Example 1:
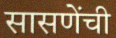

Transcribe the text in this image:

सासणेंची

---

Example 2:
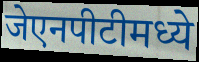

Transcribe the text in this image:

जेएनपीटीमध्ये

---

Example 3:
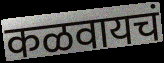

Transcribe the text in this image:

कळवायचं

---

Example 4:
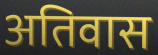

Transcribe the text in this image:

अतिवास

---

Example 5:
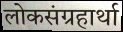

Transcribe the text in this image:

लोकसंग्रहार्था